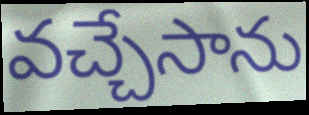
వచ్చేసాను